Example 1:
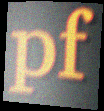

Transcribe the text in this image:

pf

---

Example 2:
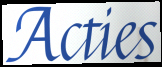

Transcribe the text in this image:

Acties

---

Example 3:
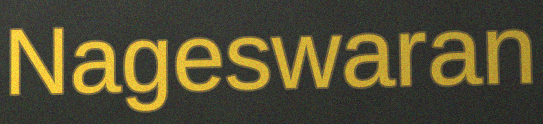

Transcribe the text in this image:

Nageswaran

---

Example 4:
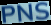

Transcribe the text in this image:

PNS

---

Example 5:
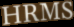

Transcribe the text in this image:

HRMS